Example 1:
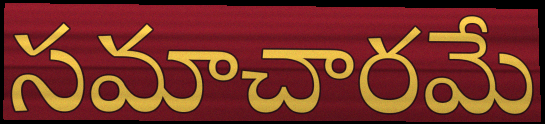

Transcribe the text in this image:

సమాచారమే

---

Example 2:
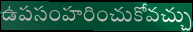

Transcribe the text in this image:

ఉపసంహరించుకోవచ్చు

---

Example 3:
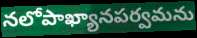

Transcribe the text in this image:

నలోపాఖ్యానపర్వమను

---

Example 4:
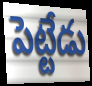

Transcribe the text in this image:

పెట్టేడు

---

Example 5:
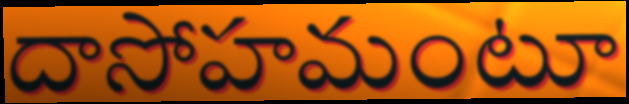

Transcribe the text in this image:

దాసోహమంటూ